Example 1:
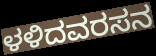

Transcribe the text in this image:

ಳಳಿದವರಸನ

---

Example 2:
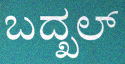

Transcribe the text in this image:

ಬದ್ಖಲ್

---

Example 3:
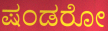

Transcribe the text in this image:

ಷಂಡರೋ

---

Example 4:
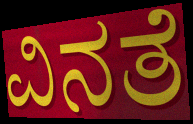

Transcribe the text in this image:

ವಿನತೆ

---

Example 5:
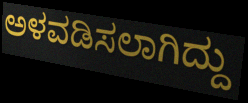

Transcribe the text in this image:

ಅಳವಡಿಸಲಾಗಿದ್ದು